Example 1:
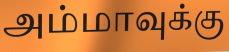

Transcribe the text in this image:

அம்மாவுக்கு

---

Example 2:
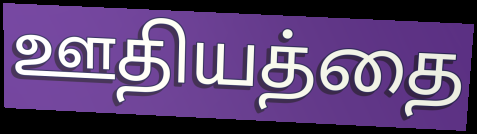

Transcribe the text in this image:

ஊதியத்தை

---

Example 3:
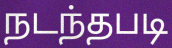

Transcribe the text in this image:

நடந்தபடி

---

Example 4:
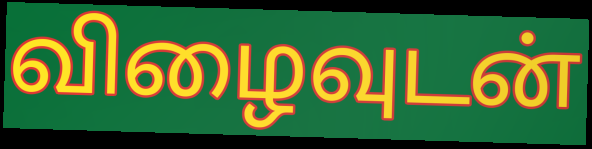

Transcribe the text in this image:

விழைவுடன்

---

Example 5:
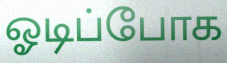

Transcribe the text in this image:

ஓடிப்போக